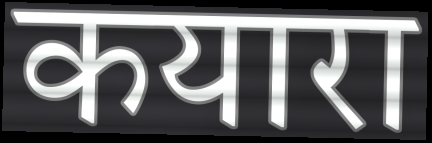
कयारा